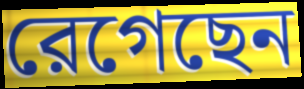
রেগেছেন